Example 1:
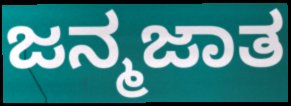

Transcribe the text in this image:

ಜನ್ಮಜಾತ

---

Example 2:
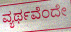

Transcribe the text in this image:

ವ್ಯರ್ಥವೆಂದೇ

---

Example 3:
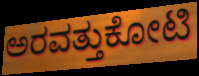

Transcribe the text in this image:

ಅರವತ್ತುಕೋಟಿ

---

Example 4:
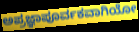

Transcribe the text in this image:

ಅಪ್ರಜ್ಞಾಪೂರ್ವಕವಾಗಿಯೋ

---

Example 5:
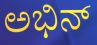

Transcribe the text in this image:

ಅಭಿನ್